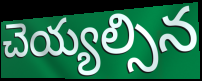
చెయ్యల్సిన